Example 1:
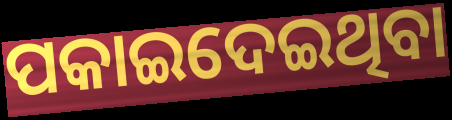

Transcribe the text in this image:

ପକାଇଦେଇଥିବା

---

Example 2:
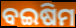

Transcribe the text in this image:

ବଇଷିମ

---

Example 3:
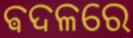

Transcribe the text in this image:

ଵଦଳରେ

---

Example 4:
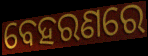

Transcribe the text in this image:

ବେହରଣରେ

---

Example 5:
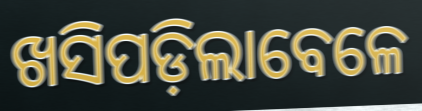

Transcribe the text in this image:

ଖସିପଡ଼ିଲାବେଳେ